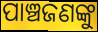
ପାଞ୍ଚଜଣଙ୍କୁ